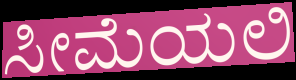
ಸೀಮೆಯಲಿ